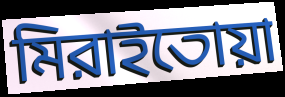
মিরাইতোয়া